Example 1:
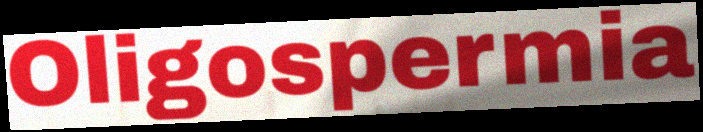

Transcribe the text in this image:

Oligospermia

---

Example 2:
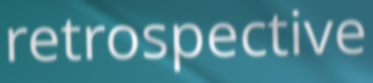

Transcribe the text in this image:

retrospective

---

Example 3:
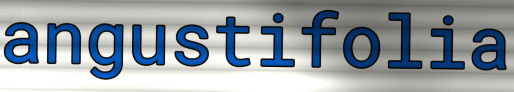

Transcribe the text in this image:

angustifolia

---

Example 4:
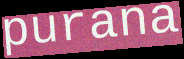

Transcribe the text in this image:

purana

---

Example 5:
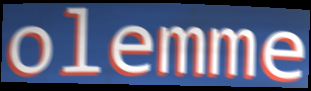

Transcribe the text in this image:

olemme